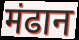
मंढान